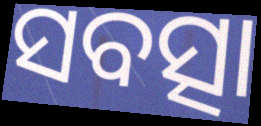
ସବତ୍ସା